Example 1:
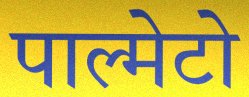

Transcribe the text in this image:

पाल्मेटो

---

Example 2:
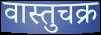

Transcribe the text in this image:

वास्तुचक्र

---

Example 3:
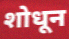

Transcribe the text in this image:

शोधून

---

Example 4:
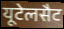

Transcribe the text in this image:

यूटेलसैट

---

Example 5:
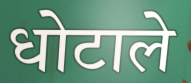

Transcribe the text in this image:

धोटाले